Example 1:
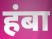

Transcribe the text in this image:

हंबा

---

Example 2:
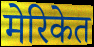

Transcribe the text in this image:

मेरिकेत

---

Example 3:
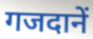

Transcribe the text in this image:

गजदानें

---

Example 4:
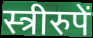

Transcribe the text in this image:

स्त्रीरुपें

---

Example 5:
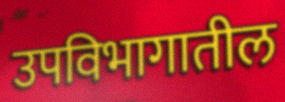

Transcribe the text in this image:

उपविभागातील